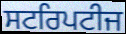
ਸਟਰਿਪਟੀਜ